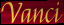
Vanci